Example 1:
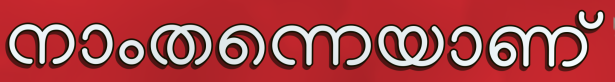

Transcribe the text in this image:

നാംതന്നെയാണ്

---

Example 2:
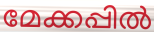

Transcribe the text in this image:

മേക്കപ്പിൽ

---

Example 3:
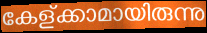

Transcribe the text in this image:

കേള്ക്കാമായിരുന്നു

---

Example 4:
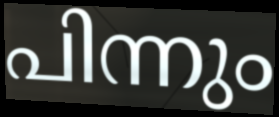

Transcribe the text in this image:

പിന്നും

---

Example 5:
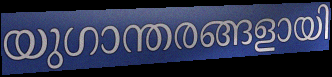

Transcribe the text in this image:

യുഗാന്തരങ്ങളായി